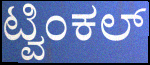
ಟ್ವಿಂಕಲ್